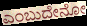
ಎಂಬುದೇನೋ